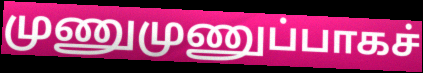
முணுமுணுப்பாகச்